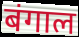
बंगाल